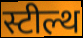
स्टील्थ